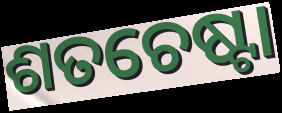
ଶତଚେଷ୍ଟା